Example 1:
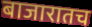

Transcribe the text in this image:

बाजारातच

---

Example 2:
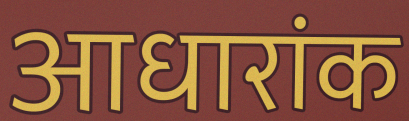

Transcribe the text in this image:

आधारांक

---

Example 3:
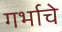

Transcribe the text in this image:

गर्भाचे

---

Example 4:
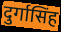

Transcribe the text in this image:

दुर्गासिंह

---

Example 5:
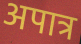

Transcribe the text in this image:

अपात्र